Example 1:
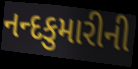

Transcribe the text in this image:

નન્દકુમારીની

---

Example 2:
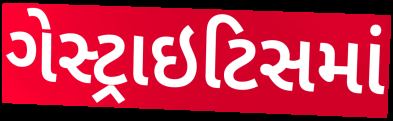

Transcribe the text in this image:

ગેસ્ટ્રાઇટિસમાં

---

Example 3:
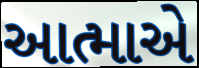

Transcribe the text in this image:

આત્માએ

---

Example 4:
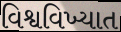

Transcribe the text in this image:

વિશ્વવિખ્યાત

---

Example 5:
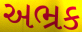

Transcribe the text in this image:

અભ્રક